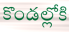
కొండల్లోకి